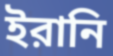
ইরানি